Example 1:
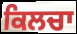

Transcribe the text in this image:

ਕਿਲਚਾ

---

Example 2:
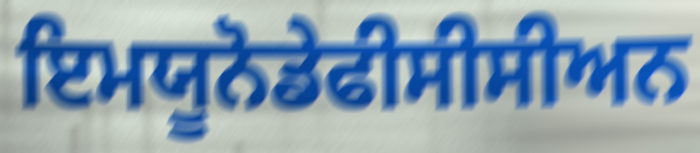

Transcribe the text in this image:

ਇਮਯੂਨੋਡੇਫੀਸੀਸੀਅਨ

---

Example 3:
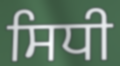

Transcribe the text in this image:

ਸਿਧੀ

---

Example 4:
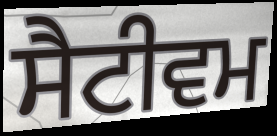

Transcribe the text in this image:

ਸੈਟੀਵਮ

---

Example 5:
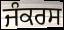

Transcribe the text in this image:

ਜੰਕਰਸ